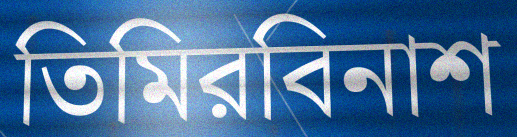
তিমিরবিনাশ